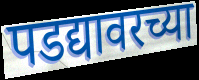
पडद्यावरच्या